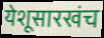
येशूसारखंच